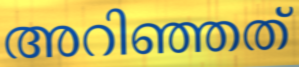
അറിഞ്ഞത്